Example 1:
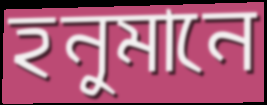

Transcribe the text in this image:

হনুমানে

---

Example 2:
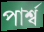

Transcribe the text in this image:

পার্শ্ব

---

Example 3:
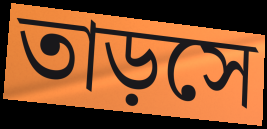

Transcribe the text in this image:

তাড়সে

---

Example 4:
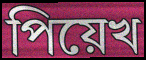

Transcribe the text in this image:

পিয়েখ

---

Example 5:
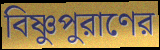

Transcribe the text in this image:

বিষ্ণুপুরাণের